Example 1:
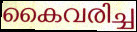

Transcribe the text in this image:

കൈവരിച്ച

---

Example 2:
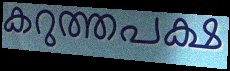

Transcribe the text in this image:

കറുത്തപക്ഷ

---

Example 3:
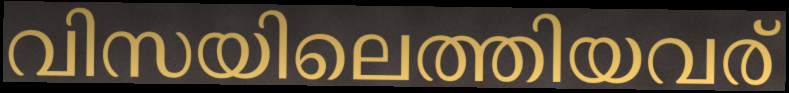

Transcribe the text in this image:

വിസയിലെത്തിയവര്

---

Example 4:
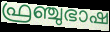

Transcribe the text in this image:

ഫ്രഞ്ചുഭാഷ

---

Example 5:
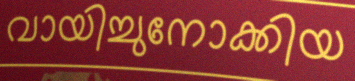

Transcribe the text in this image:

വായിച്ചുനോക്കിയ